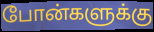
போன்களுக்கு